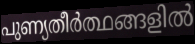
പുണ്യതീർത്ഥങ്ങളിൽ